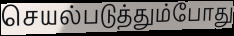
செயல்படுத்தும்போது